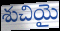
శుచియై